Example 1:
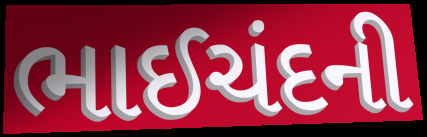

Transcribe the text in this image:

ભાઈચંદની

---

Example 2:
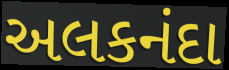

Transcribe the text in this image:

અલકનંદા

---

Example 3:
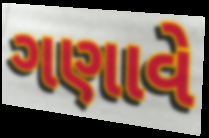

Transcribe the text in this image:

ગણાવે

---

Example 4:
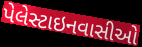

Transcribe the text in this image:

પેલેસ્ટાઇનવાસીઓ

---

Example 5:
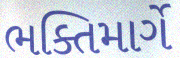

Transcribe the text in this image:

ભક્તિમાર્ગે